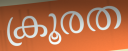
ക്രൂരത